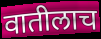
वातीलाच